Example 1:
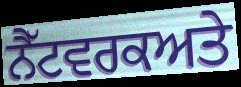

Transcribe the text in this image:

ਨੈੱਟਵਰਕਅਤੇ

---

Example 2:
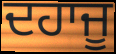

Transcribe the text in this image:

ਦਹਾਜੂ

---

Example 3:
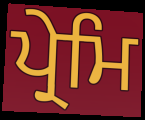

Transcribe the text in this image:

ਪ੍ਰੇਮਿ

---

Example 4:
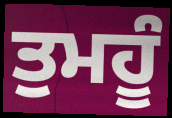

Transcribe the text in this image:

ਤੁਮਹੂੰ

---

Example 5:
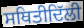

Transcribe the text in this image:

ਸਥਿਤੀਦਿੱਲੀ